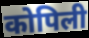
कोपिली